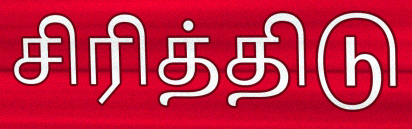
சிரித்திடு